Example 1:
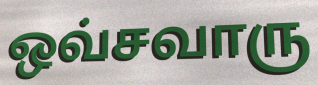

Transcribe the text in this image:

ஒவ்சவாரு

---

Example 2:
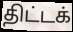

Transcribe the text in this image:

திட்டக்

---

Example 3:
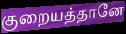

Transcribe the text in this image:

குறையத்தானே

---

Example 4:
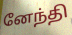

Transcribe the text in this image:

னேந்தி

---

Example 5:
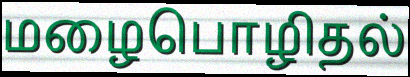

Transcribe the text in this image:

மழைபொழிதல்